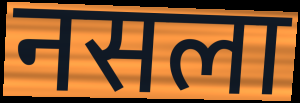
नसला